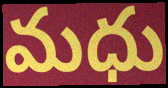
మధు